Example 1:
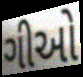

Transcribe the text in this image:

ગીઓ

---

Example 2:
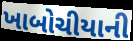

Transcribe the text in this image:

ખાબોચીયાની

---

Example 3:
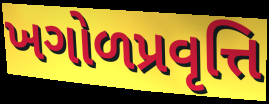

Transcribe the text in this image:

ખગોળપ્રવૃત્તિ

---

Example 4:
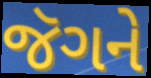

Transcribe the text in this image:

જૅગને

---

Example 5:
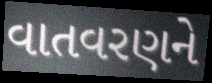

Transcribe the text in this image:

વાતવરણને